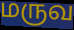
மருவ